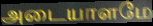
அடையாளமே